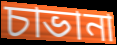
চাভানা